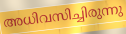
അധിവസിച്ചിരുന്നു